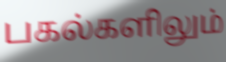
பகல்களிலும்